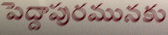
పెద్దాపురమునకు